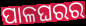
ପାଳଘରର